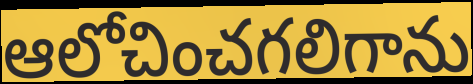
ఆలోచించగలిగాను